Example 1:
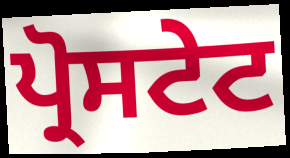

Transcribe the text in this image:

ਪ੍ਰੋਸਟੇਟ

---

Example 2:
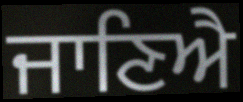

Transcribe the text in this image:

ਜਾਣਿਐ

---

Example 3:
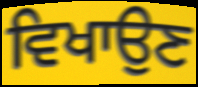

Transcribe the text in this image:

ਵਿਖਾਉਣ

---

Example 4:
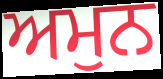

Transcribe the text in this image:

ਅਮੁਨ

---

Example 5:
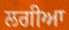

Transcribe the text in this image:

ਲਗੀਆ